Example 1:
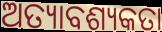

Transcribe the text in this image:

ଅତ୍ୟାବଶ୍ୟକତା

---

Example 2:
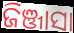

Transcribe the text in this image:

ଜିଞ୍ଜାସା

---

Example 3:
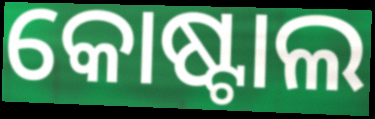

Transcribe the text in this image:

କୋଷ୍ଟାଲ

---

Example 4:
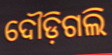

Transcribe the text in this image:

ଦୌଡ଼ିଗଲି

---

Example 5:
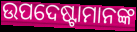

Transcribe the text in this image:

ଉପଦେଷ୍ଟାମାନଙ୍କ